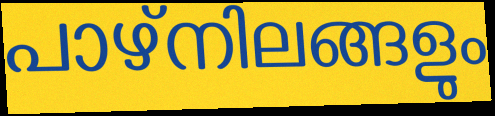
പാഴ്നിലങ്ങളും